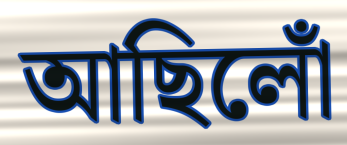
আছিলোঁ